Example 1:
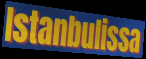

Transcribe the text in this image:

Istanbulissa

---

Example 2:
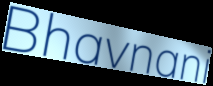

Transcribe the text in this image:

Bhavnani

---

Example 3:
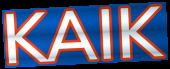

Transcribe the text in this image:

KAIK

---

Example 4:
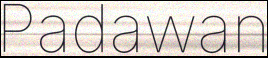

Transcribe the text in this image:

Padawan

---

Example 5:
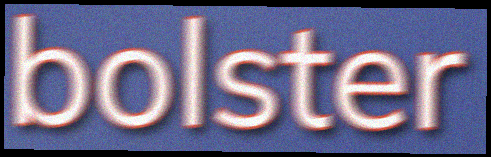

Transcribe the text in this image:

bolster